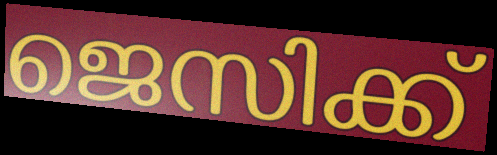
ജെസിക്ക്